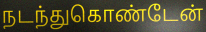
நடந்துகொண்டேன்